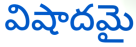
విషాదమై